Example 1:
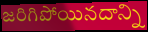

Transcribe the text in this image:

జరిగిపోయినదాన్ని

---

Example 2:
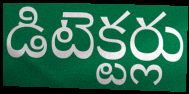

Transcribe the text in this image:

డిటెక్టర్లు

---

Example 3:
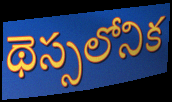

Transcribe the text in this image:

థెస్సలోనిక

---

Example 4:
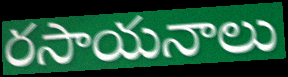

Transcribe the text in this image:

రసాయనాలు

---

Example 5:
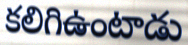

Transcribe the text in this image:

కలిగిఉంటాడు